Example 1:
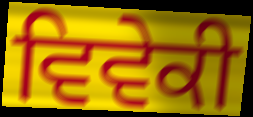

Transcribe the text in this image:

ਵਿਵੇਕੀ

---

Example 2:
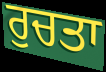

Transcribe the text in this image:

ਰੁਚਤਾ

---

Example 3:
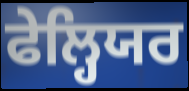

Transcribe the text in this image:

ਫੇਲ੍ਹਿਯਰ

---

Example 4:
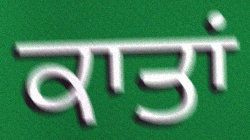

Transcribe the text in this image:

ਕਾਤਾਂ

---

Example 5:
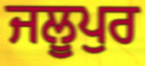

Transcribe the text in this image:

ਜਲੂਪੁਰ